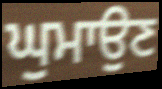
ਘੁਮਾਉਣ